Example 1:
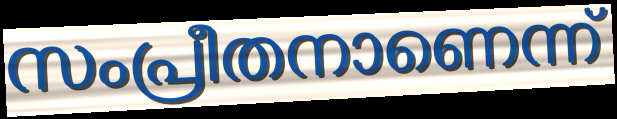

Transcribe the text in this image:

സംപ്രീതനാണെന്ന്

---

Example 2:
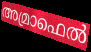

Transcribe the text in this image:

അമ്രാഫെൽ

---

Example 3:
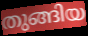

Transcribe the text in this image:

തുങ്ങിയ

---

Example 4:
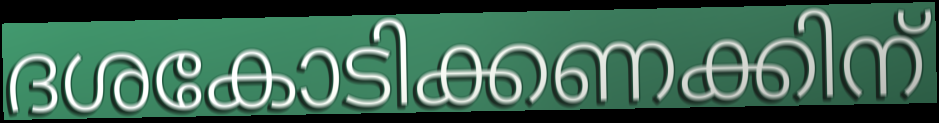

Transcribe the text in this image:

ദശകോടിക്കണക്കിന്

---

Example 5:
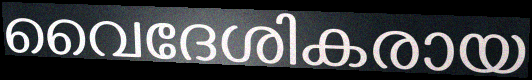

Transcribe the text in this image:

വൈദേശികരായ